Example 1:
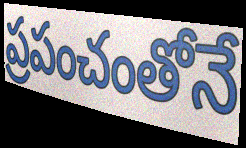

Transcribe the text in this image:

ప్రపంచంతోనే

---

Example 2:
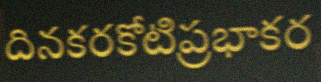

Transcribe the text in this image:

దినకరకోటిప్రభాకర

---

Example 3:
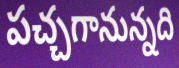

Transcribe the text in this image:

పచ్చగానున్నది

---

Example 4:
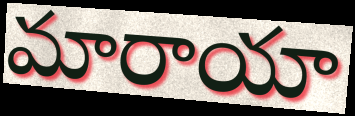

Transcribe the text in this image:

మారాయా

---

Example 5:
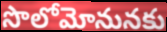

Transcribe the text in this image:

సొలోమోనునకు